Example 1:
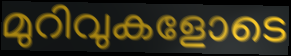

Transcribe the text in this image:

മുറിവുകളോടെ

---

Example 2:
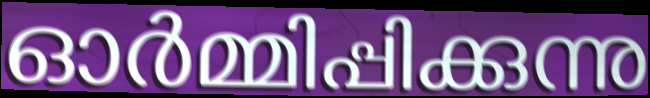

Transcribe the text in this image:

ഓർമ്മിപ്പിക്കുന്നു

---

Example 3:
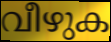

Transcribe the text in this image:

വീഴുക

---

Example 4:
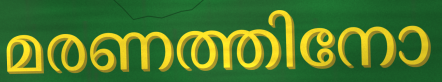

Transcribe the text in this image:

മരണത്തിനോ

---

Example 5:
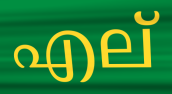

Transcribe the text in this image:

എല്